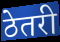
ठेतरी